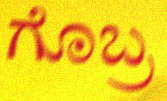
ಗೊಬ್ರ